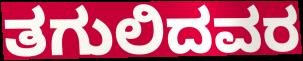
ತಗುಲಿದವರ